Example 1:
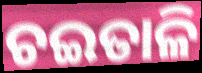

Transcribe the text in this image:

ଚଇତାଳି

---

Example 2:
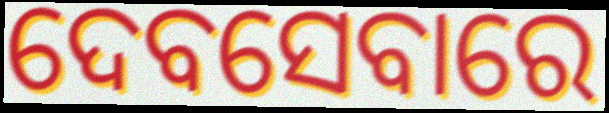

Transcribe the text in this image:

ଦେବସେବାରେ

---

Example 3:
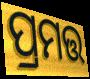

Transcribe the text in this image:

ପ୍ରମତ୍ତ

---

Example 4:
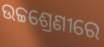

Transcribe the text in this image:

ଉଚ୍ଚଶ୍ରେଣୀରେ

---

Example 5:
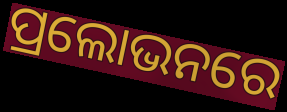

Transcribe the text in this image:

ପ୍ରଲୋଭନରେ